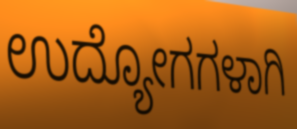
ಉದ್ಯೋಗಗಳಾಗಿ